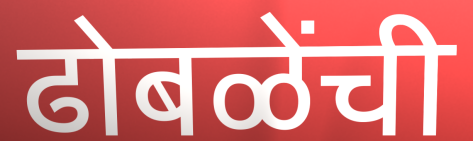
ढोबळेंची